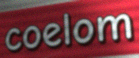
coelom